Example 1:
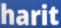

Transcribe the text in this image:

harit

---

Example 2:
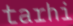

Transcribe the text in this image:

tarhi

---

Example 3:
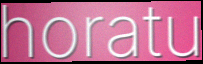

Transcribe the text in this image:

horatu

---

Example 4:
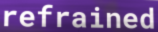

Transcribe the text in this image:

refrained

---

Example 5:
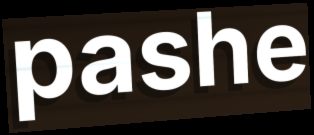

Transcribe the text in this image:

pashe